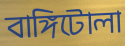
বাঙ্গিটোলা